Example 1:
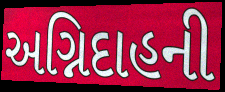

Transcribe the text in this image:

અગ્નિદાહની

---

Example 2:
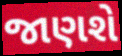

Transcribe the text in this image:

જાણશે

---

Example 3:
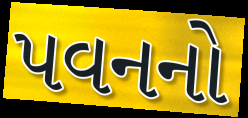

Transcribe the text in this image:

પવનનો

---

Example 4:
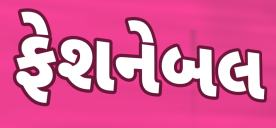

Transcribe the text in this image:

ફેશનેબલ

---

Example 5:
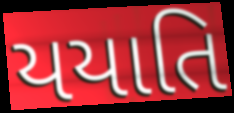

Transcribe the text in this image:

યયાતિ